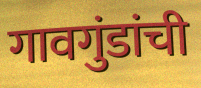
गावगुंडांची